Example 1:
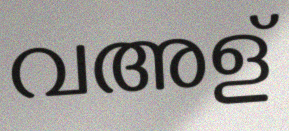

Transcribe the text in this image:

വഅള്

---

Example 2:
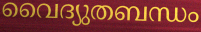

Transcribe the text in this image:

വൈദ്യുതബന്ധം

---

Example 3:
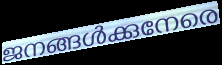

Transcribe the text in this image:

ജനങ്ങൾക്കുനേരെ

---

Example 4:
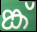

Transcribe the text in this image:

ങ്ക്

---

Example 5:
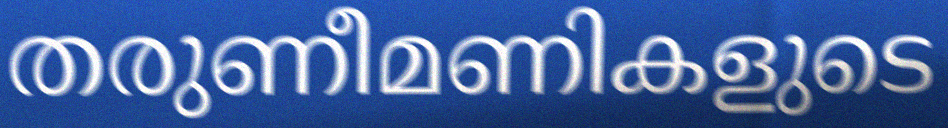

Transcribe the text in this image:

തരുണീമണികളുടെ